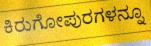
ಕಿರುಗೋಪುರಗಳನ್ನೂ